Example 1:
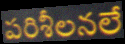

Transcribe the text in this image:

పరిశీలనలే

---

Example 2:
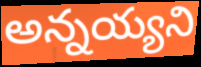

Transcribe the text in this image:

అన్నయ్యని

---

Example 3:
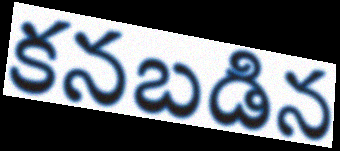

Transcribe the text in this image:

కనబడిన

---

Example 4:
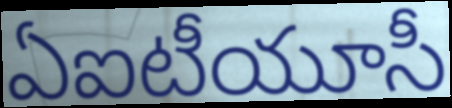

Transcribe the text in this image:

ఏఐటీయూసీ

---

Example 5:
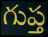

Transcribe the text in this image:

గుప్త